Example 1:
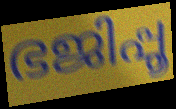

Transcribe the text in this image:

ഭജിപ്പൂ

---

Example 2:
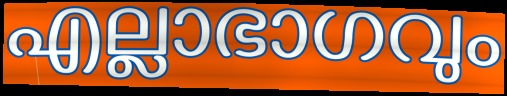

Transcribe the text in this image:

എല്ലാഭാഗവും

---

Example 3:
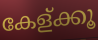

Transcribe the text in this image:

കേള്ക്കൂ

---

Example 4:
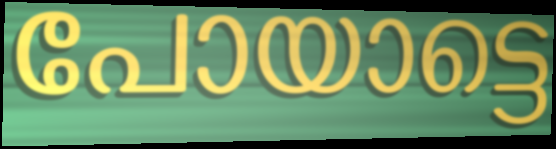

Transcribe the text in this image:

പോയാട്ടെ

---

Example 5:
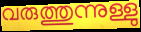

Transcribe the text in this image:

വരുത്തുന്നുള്ളു